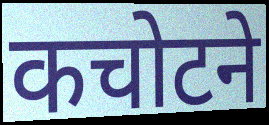
कचोटने